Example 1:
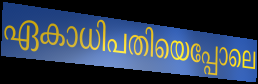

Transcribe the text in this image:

ഏകാധിപതിയെപ്പോലെ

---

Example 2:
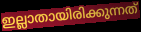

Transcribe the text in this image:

ഇല്ലാതായിരിക്കുന്നത്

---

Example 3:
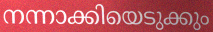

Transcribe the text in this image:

നന്നാക്കിയെടുക്കും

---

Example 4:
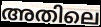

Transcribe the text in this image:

അതിലെ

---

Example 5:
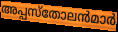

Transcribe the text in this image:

അപ്പസ്തോലൻമാർ